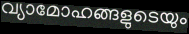
വ്യാമോഹങ്ങളുടെയും